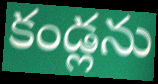
కండ్లను